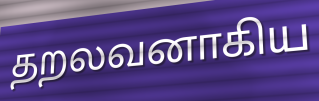
தறலவனாகிய